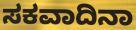
ಸಕವಾದಿನಾ